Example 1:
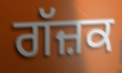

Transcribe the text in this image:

ਗੱਜ਼ਕ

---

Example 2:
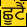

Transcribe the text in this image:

ਛੂਟੈਂ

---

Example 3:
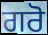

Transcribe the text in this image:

ਗਰੋ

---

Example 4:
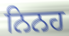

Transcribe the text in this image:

ਨਿਨਹ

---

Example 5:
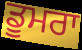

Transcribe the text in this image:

ਡੂਮਰਾ